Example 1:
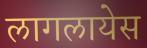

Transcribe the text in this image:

लागलायेस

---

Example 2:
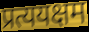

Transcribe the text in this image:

प्रत्ययक्षम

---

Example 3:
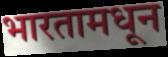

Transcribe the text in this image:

भारतामधून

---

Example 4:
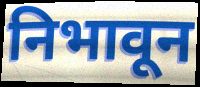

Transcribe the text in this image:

निभावून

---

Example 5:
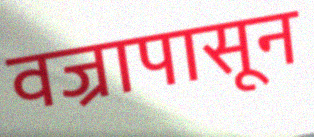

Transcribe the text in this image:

वज्रापासून